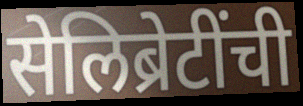
सेलिब्रेटींची